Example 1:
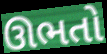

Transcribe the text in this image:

ઊભતો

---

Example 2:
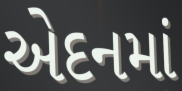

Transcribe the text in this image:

એદનમાં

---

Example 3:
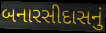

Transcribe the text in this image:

બનારસીદાસનું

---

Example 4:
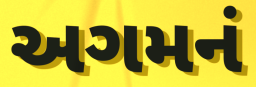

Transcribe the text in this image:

અગમનં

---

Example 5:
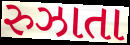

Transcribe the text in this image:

રુઝાતા